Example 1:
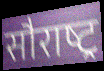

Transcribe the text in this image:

सौराष्ट्र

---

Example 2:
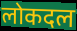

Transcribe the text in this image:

लोकदल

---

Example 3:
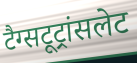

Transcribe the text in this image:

टैग्सटूट्रांसलेट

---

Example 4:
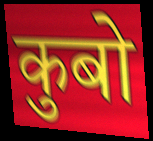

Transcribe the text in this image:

कुबो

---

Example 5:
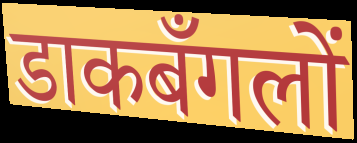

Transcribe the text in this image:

डाकबँगलों